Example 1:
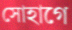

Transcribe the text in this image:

সোহাগে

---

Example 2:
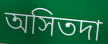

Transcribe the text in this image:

অসিতদা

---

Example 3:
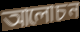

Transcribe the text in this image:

আলোচন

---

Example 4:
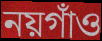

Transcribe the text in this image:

নয়গাঁও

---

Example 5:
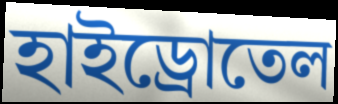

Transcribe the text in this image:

হাইড্রোতেল